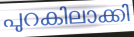
പുറകിലാക്കി